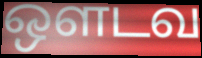
ஔடவ